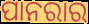
ପାନରାର